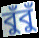
বুঁবুঁ